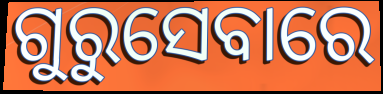
ଗୁରୁସେବାରେ